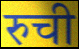
रुची